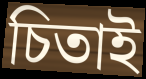
চিতাই